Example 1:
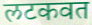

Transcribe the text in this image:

लटकवत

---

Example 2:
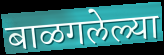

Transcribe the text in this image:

बाळगलेल्या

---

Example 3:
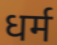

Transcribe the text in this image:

धर्म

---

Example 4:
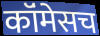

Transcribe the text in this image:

कॉंमेसच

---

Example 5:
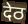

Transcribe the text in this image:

देठ